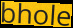
bhole